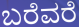
ಬರೆವರೆ